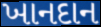
ખાનદાન